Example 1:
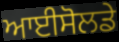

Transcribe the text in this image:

ਆਈਸੋਲਡੇ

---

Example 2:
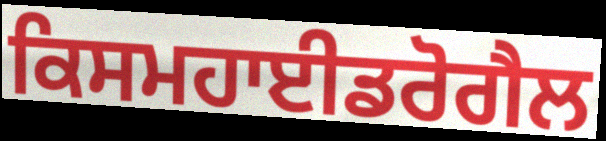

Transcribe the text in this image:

ਕਿਸਮਹਾਈਡਰੋਗੈਲ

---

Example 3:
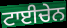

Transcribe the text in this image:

ਟਾਈਚੇਨ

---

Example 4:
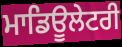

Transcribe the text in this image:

ਮਾਡਿਊਲੇਟਰੀ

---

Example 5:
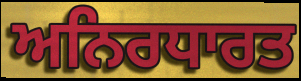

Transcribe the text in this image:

ਅਨਿਰਧਾਰਤ